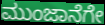
ಮುಂಜಾನೆಗೇ